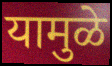
यामुळे